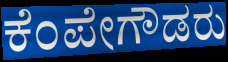
ಕೆಂಪೇಗೌಡರು